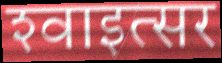
श्वाइत्सर